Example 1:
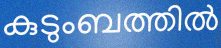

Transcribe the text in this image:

കുടുംബത്തിൽ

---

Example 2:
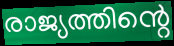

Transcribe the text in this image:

രാജ്യത്തിന്റെ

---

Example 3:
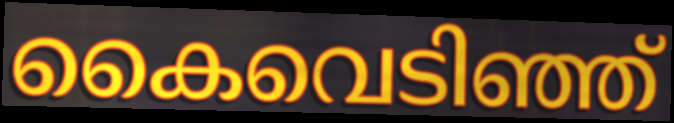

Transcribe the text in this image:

കൈവെടിഞ്ഞ്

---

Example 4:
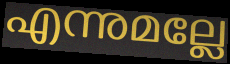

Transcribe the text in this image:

എന്നുമല്ലേ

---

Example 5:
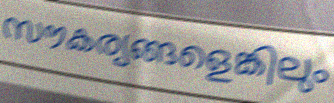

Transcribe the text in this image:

സൗകര്യങ്ങളെങ്കിലും